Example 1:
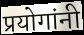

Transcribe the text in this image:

प्रयोगांनी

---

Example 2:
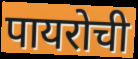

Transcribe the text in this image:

पायरोची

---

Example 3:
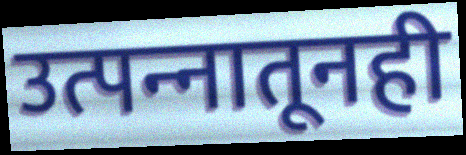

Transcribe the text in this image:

उत्पन्नातूनही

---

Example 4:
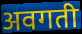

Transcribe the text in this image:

अवगती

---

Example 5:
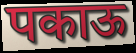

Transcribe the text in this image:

पकाऊ